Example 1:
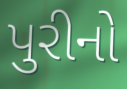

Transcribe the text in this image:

પુરીનો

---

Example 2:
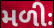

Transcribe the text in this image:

મળીઃ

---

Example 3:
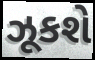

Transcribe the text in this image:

ઝૂકશે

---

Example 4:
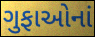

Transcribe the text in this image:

ગુફાઓનાં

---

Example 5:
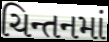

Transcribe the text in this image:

ચિન્તનમાં